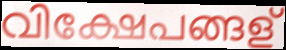
വിക്ഷേപങ്ങള്